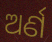
ଅର୍ଣ